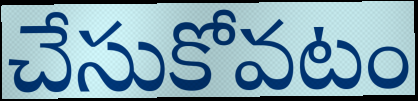
చేసుకోవటం